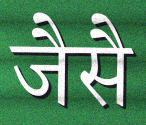
जैसै